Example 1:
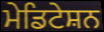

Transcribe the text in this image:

ਮੇਡਿਟੇਸ਼ਨ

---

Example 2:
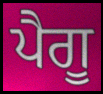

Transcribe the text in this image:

ਪੈਗੂ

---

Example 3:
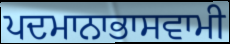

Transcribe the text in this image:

ਪਦਮਾਨਾਭਾਸਵਾਮੀ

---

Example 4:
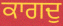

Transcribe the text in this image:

ਕਾਗਦੁ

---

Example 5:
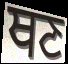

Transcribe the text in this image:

ਥਣ